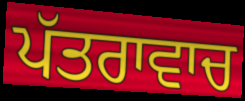
ਪੱਤਰਾਵਾਚ